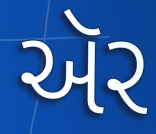
ઍર